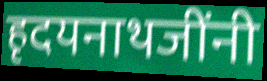
हृदयनाथजींनी